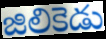
జిలికెడు